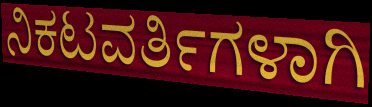
ನಿಕಟವರ್ತಿಗಳಾಗಿ